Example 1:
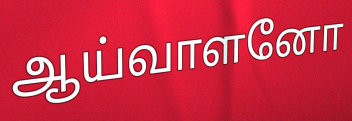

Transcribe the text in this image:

ஆய்வாளனோ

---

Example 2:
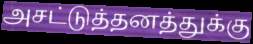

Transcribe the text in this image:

அசட்டுத்தனத்துக்கு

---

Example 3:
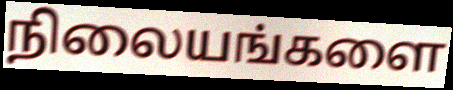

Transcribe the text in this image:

நிலையங்களை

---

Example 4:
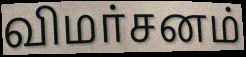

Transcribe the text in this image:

விமர்சனம்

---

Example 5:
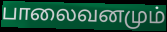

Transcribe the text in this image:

பாலைவனமும்